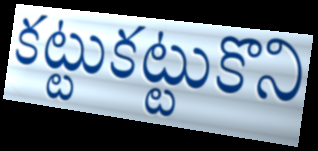
కట్టుకట్టుకొని